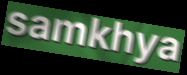
samkhya